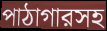
পাঠাগারসহ